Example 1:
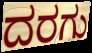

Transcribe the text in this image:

ದರಗು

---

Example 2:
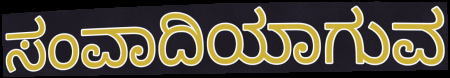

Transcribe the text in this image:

ಸಂವಾದಿಯಾಗುವ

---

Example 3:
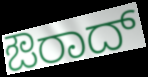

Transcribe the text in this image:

ಔರಾದ್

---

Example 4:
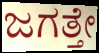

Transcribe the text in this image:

ಜಗತ್ತೇ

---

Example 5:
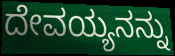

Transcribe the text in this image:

ದೇವಯ್ಯನನ್ನು